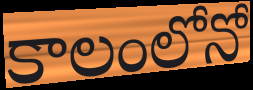
కాలంలోనో